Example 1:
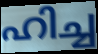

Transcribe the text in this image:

ഹിച്ച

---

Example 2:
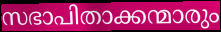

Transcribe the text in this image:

സഭാപിതാക്കന്മാരും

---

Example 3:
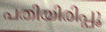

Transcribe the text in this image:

പതിയിരിപ്പൂ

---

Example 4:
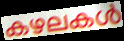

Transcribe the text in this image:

കഴലകൾ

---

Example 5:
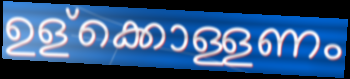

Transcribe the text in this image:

ഉള്ക്കൊള്ളണം